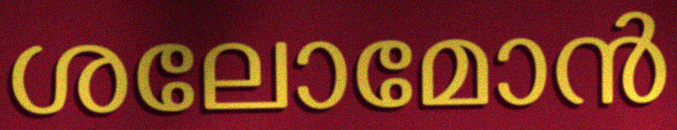
ശലോമോൻ